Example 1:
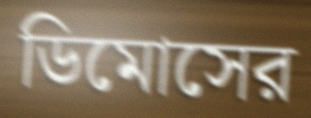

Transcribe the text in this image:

ডিমোসের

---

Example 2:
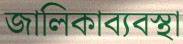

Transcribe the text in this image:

জালিকাব্যবস্থা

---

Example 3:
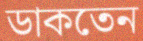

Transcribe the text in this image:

ডাকতেন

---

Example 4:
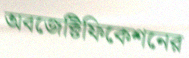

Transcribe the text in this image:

অবজেক্টিফিকেশনের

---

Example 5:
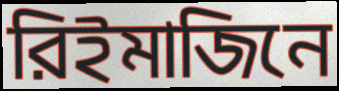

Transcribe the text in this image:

রিইমাজিনে